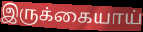
இருக்கையாய்